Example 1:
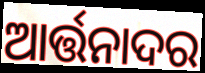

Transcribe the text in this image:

ଆର୍ତ୍ତନାଦର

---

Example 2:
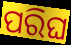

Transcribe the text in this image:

ପରିଘ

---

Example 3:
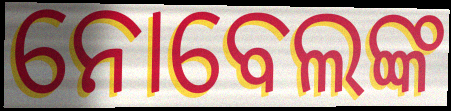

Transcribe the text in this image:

ନୋବେଲଙ୍କ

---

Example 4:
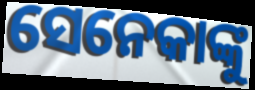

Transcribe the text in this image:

ସେନେକାଙ୍କୁ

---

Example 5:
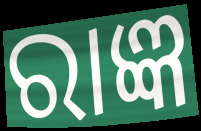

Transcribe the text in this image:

ରାଜ୍ଞ